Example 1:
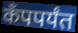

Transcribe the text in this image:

कँपपर्यंत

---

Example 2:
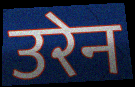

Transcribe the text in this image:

उरेन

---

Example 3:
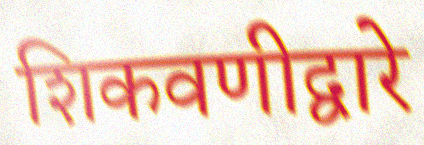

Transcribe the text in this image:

शिकवणीद्वारे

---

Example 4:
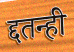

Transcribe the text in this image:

द्दतन्ही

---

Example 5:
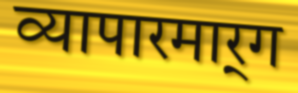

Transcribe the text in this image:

व्यापारमार्ग